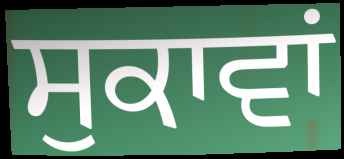
ਸੁਕਾਵਾਂ